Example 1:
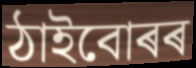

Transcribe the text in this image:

ঠাইবোৰৰ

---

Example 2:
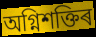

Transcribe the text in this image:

অগ্নিশক্তিৰ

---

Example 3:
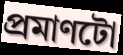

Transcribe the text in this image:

প্ৰমাণটো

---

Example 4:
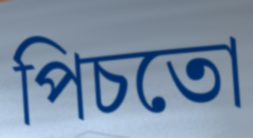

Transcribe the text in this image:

পিচতো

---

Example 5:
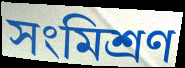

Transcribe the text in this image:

সংমিশ্ৰণ